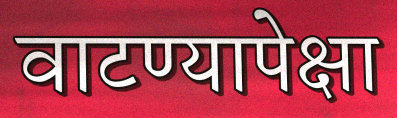
वाटण्यापेक्षा